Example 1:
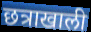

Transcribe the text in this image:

छत्राखाली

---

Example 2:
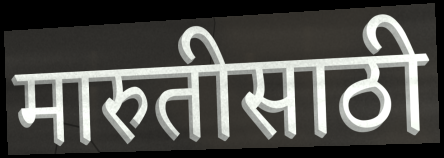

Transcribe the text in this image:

मारुतीसाठी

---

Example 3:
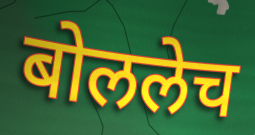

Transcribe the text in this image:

बोललेच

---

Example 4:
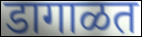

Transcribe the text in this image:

डागाळत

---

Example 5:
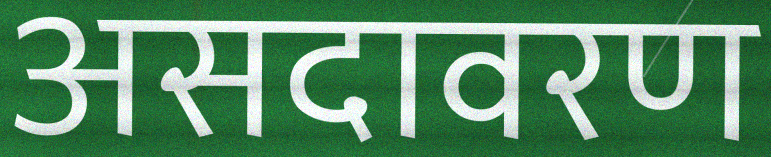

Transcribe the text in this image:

असदावरण